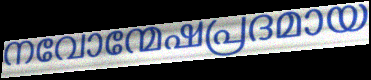
നവോന്മേഷപ്രദമായ